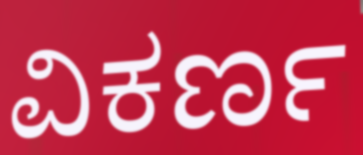
ವಿಕರ್ಣ